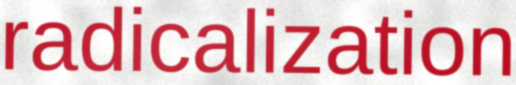
radicalization